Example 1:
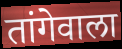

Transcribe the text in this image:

तांगेवाला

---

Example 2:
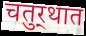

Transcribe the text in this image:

चतुर्थात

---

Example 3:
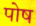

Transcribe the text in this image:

पोष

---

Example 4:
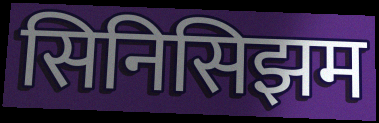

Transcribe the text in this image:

सिनिसिझम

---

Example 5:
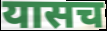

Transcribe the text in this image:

यासच